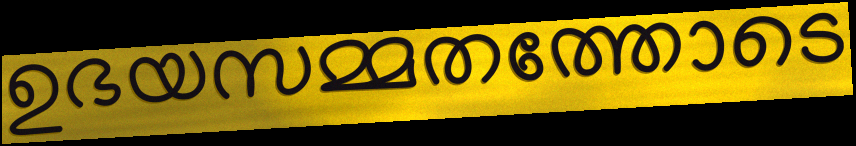
ഉഭയസമ്മതത്തോടെ